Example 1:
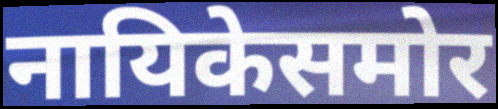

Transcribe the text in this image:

नायिकेसमोर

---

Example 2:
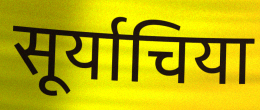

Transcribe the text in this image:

सूर्याचिया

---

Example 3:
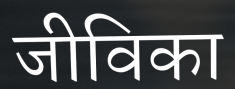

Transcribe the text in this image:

जीविका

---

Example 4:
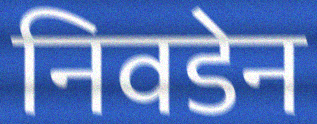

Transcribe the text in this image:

निवडेन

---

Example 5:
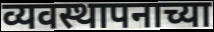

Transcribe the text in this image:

व्यवस्थापनाच्या